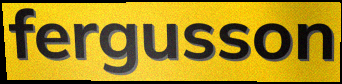
fergusson